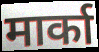
मार्का